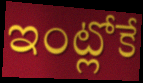
ఇంట్లోకే